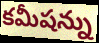
కమీషన్ను